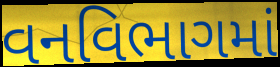
વનવિભાગમાં